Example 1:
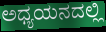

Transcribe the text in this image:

ಅಧ್ಯಯನದಲ್ಲಿ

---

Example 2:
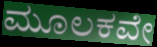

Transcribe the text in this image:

ಮೂಲಕವೇ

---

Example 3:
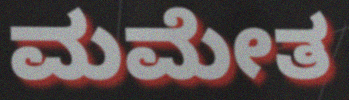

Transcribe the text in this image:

ಮಮೇತ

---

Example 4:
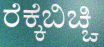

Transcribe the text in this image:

ರೆಕ್ಕೆಬಿಚ್ಚಿ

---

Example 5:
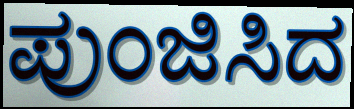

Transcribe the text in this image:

ಪುಂಜಿಸಿದ